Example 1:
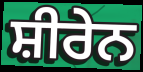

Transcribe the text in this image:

ਸ਼ੀਰੇਨ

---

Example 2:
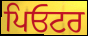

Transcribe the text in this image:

ਪਿਓਟਰ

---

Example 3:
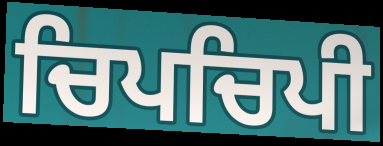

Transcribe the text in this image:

ਚਿਪਚਿਪੀ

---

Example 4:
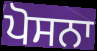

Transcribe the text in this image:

ਪੋਸਨਾ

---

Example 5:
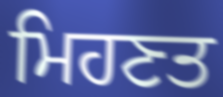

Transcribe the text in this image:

ਮਿਹਣਤ